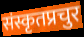
संस्कृतप्रचुर